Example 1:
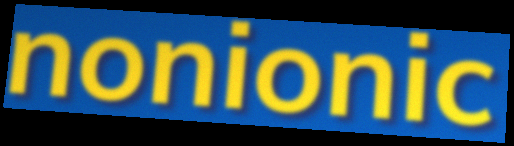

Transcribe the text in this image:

nonionic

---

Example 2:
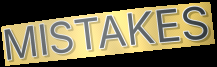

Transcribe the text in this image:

MISTAKES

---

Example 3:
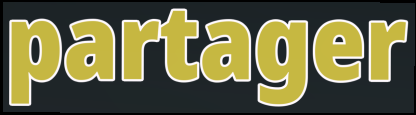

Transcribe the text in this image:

partager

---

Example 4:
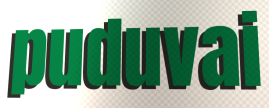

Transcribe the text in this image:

puduvai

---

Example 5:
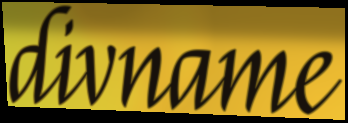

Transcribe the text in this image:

divname